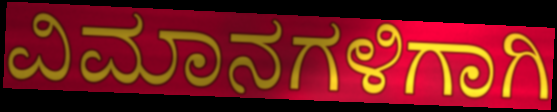
ವಿಮಾನಗಳಿಗಾಗಿ